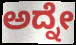
ಅದ್ನೇ